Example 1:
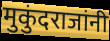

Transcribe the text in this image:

मुकुंदराजांनी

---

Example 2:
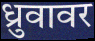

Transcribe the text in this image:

ध्रुवावर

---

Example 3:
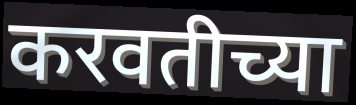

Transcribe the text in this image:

करवतीच्या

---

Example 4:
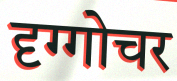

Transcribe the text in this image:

दृग्गोचर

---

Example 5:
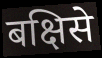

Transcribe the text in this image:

बक्षिसे